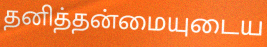
தனித்தன்மையுடைய